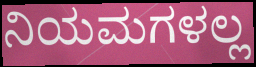
ನಿಯಮಗಳಲ್ಲ